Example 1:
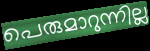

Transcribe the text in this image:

പെരുമാറുന്നില്ല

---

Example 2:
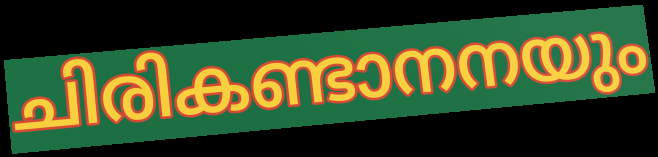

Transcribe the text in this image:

ചിരികണ്ടാനനയും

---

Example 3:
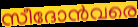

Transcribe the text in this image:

സീദോൻവരെ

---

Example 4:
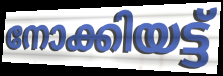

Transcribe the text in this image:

നോക്കിയട്ട്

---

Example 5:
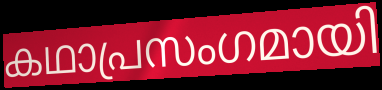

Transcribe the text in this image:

കഥാപ്രസംഗമായി